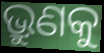
ଭ୍ରୁଣକୁ